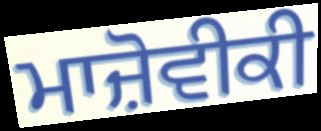
ਮਾਜ਼ੋਵੀਕੀ